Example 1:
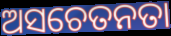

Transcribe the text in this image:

ଅସଚେତନତା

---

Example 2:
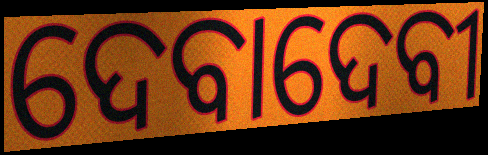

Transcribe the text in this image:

ଦେବାଦେବୀ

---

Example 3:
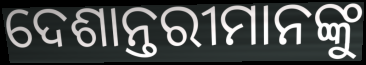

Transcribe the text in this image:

ଦେଶାନ୍ତରୀମାନଙ୍କୁ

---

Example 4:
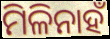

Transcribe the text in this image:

ମିଳିନାହଁ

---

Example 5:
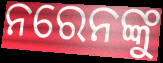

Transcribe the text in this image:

ନରେନଙ୍କୁ